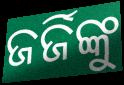
ଜର୍ଜିଙ୍କୁ